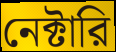
নেক্টারি